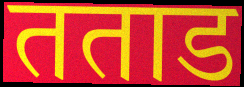
तताड